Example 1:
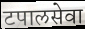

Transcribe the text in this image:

टपालसेवा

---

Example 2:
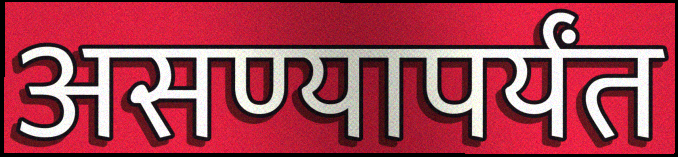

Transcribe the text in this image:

असण्यापर्यंत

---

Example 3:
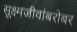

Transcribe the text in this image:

सूक्ष्मजीवांबरोबर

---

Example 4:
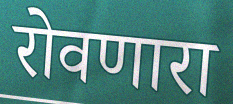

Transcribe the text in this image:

रोवणारा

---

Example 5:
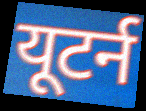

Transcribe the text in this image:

यूटर्न